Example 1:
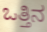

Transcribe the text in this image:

ಒತ್ತಿನ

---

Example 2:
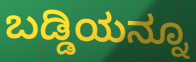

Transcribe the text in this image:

ಬಡ್ಡಿಯನ್ನೂ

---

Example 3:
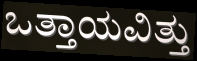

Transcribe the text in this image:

ಒತ್ತಾಯವಿತ್ತು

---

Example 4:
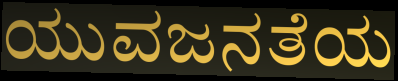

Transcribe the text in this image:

ಯುವಜನತೆಯ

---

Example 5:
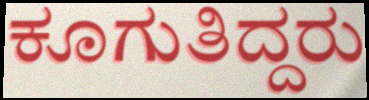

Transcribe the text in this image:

ಕೂಗುತಿದ್ದರು